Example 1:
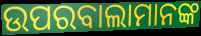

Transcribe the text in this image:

ଉପରବାଲାମାନଙ୍କ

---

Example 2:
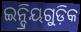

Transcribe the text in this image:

ଇନ୍ଦ୍ରିୟଗୁଡ଼ିକ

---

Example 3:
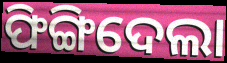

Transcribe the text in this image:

ଫିଙ୍ଗିଦେଲା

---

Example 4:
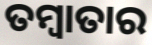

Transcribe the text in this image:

ତମ୍ବାତାର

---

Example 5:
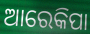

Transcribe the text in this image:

ଆରେକିପା